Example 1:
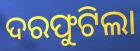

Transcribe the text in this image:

ଦରଫୁଟିଲା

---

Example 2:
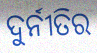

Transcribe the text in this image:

ଦୁର୍ନୀତିର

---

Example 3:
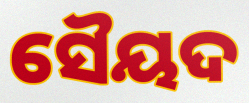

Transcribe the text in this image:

ସୈୟଦ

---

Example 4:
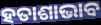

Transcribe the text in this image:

ହତାଶାଭାବ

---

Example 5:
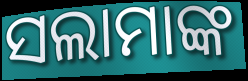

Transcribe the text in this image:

ସଲାମାଙ୍କ